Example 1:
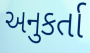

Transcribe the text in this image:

અનુકર્તા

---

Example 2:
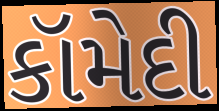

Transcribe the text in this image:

કૉમેદી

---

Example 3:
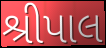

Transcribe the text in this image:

શ્રીપાલ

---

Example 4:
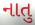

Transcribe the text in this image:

નાતુ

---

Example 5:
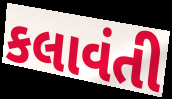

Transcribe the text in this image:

કલાવંતી